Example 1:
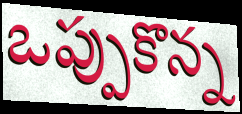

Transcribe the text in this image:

ఒప్పుకొన్న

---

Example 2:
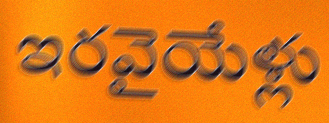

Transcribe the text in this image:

ఇరవైయేళ్లు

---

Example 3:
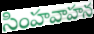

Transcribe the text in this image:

సింహవాహన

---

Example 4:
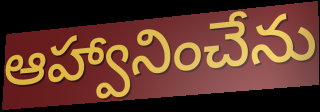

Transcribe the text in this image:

ఆహ్వానించేను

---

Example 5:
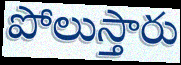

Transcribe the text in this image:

పోలుస్తారు